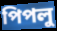
পিপলু